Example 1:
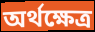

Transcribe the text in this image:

অৰ্থক্ষেত্ৰ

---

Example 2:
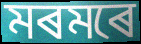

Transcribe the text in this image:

মৰমৰে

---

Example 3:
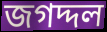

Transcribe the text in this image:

জগদ্দল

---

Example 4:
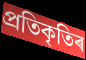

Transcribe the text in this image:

প্ৰতিকৃতিৰ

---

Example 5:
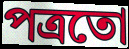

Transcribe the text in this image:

পত্ৰতো